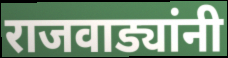
राजवाड्यांनी